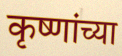
कृष्णांच्या